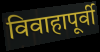
विवाहापूर्वी